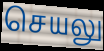
செயலு